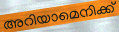
അറിയാമെനിക്ക്